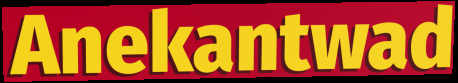
Anekantwad